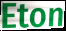
Eton